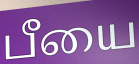
பீயை